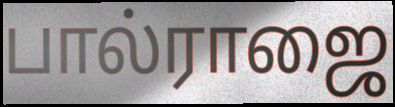
பால்ராஜை